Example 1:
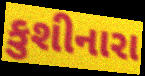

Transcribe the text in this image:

કુશીનારા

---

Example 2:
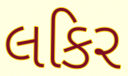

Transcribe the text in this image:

લકિર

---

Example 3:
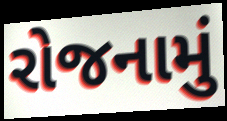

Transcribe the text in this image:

રોજનામું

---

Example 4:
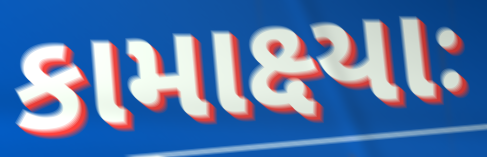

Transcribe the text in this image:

કામાક્ષ્યાઃ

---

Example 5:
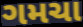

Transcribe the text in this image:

ગમચા